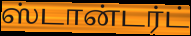
ஸ்டான்டர்ட்